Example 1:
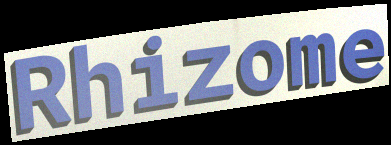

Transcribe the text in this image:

Rhizome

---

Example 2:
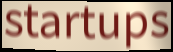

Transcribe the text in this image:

startups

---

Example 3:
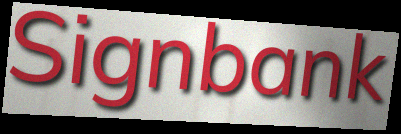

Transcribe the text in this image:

Signbank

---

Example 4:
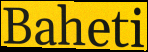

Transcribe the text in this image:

Baheti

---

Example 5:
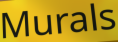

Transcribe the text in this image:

Murals